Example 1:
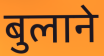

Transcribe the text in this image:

बुलाने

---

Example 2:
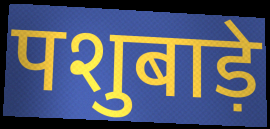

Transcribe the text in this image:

पशुबाड़े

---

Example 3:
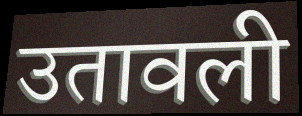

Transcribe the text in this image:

उतावली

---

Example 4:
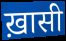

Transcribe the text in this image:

ख़ासी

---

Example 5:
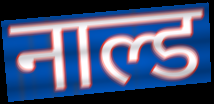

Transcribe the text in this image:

नाल्ड